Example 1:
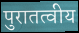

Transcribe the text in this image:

पुरातत्वीय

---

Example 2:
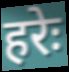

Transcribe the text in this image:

हरेः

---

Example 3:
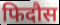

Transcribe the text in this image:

फिदौस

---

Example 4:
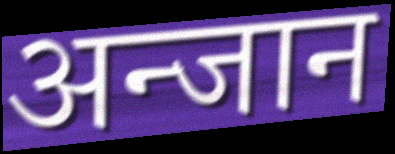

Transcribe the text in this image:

अन्जान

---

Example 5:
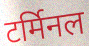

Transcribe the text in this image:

टर्मिनल